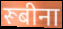
रूबीना